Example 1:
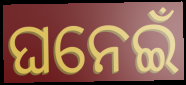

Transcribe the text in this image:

ଘନେଇଁ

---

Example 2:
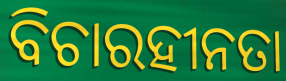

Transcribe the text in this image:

ବିଚାରହୀନତା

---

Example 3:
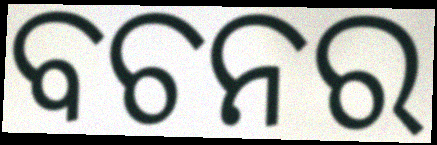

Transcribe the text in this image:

ବଚନର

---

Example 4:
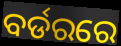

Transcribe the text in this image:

ବର୍ଡରରେ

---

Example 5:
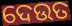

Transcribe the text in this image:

ଦେଉତ